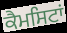
ਕੈਮਸਿਟਾਂ